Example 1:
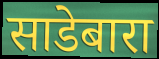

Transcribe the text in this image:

साडेबारा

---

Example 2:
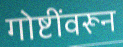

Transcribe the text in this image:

गोष्टींवरून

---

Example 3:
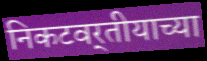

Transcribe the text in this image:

निकटवर्तीयाच्या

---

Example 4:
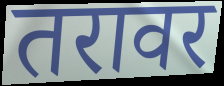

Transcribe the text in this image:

तरावर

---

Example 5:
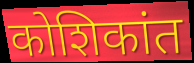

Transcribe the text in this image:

कोशिकांत